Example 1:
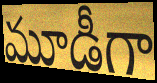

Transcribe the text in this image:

మూడీగా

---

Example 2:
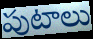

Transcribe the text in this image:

పుటాలు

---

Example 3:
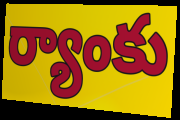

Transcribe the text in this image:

ర్యాంకు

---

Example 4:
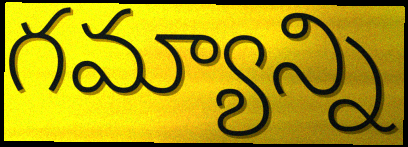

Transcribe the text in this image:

గమ్యాన్ని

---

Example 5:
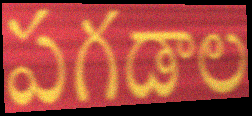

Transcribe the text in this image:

పగడాల